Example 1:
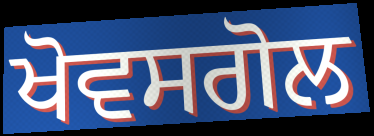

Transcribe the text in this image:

ਖੋਵਸਗੋਲ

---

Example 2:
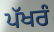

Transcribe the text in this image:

ਪੱਖਰੰ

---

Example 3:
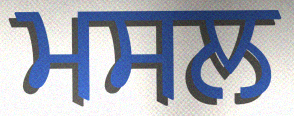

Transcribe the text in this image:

ਮਸਲ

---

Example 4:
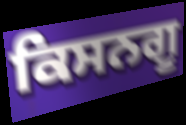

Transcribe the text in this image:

ਕਿਸਨਗੂ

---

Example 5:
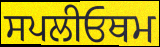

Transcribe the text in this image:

ਸਪਲੀਓਥਮ